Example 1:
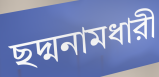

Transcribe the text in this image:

ছদ্মনামধারী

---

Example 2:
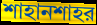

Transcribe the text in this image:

শাহানশাহর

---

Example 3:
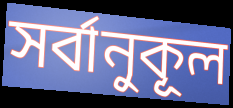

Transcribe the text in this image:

সর্বানুকূল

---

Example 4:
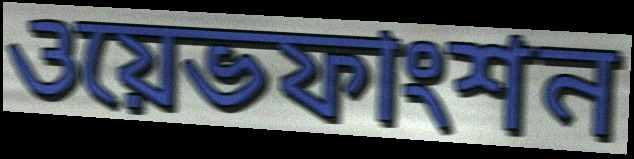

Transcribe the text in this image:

ওয়েভফাংশন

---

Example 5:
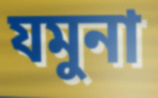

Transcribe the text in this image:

যমুনা